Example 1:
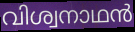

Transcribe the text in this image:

വിശ്വനാഥൻ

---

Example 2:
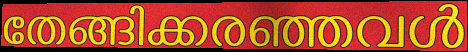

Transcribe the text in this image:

തേങ്ങിക്കരഞ്ഞവൾ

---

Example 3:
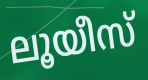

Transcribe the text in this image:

ലൂയീസ്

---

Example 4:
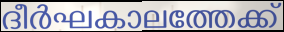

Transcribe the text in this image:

ദീർഘകാലത്തേക്ക്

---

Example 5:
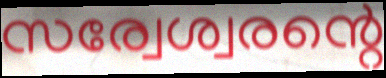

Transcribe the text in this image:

സര്വേശ്വരന്റെ